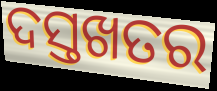
ଦସ୍ତଖତର